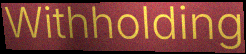
Withholding